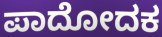
ಪಾದೋದಕ